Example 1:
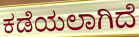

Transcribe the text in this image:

ಕಡೆಯಲಾಗಿದೆ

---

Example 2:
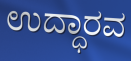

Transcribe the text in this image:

ಉದ್ಧಾರವ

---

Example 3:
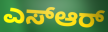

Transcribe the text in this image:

ಎಸ್ಆರ್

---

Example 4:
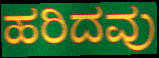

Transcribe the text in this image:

ಹರಿದವು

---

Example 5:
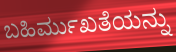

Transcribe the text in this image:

ಬಹಿರ್ಮುಖತೆಯನ್ನು